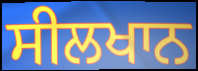
ਸੀਲਖਾਨ